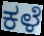
ಕಳೆ